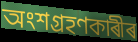
অংশগ্ৰহণকাৰীৰ